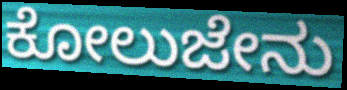
ಕೋಲುಜೇನು